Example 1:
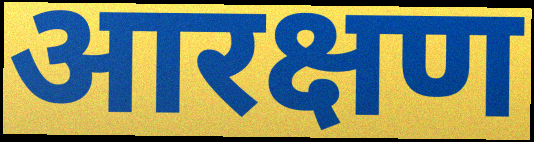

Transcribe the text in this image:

आरक्षण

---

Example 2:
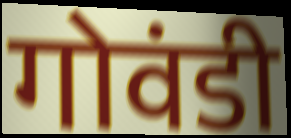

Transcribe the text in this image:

गोवंडी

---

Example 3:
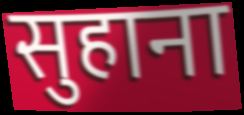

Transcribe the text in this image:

सुहाना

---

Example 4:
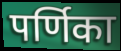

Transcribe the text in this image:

पर्णिका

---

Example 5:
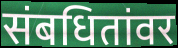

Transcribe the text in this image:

संबधितांवर